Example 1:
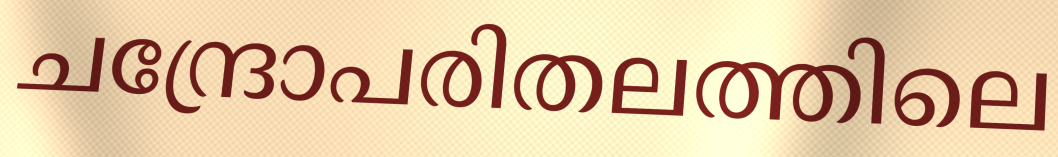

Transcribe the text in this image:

ചന്ദ്രോപരിതലത്തിലെ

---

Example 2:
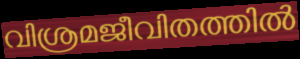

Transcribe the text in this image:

വിശ്രമജീവിതത്തിൽ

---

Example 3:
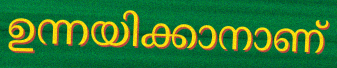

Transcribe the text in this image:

ഉന്നയിക്കാനാണ്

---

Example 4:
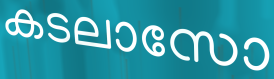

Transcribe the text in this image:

കടലാസോ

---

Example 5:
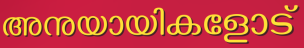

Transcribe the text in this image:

അനുയായികളോട്